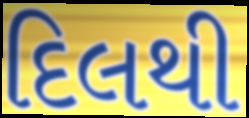
દિલથી